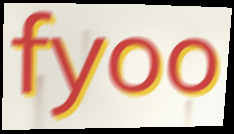
fyoo